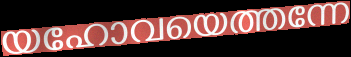
യഹോവയെത്തന്നേ